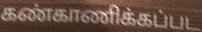
கண்காணிக்கப்பட